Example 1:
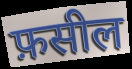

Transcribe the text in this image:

फ़सील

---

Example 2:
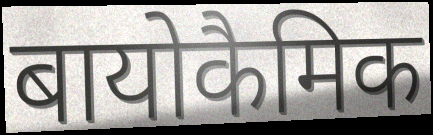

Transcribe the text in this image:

बायोकैमिक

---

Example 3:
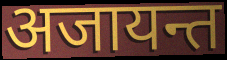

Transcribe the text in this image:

अजायन्त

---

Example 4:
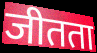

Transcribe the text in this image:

जीतता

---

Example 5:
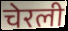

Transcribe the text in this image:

चेरली